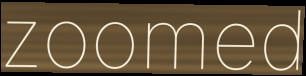
zoomed